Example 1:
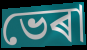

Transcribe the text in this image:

ভেৰা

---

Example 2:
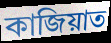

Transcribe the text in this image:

কাজিয়াত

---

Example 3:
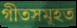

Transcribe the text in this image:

গীতসমূহত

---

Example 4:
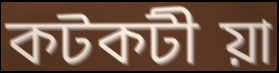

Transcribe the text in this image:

কটকটীয়া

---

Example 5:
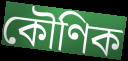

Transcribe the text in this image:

কৌণিক